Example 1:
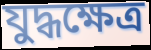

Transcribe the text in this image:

যুদ্ধক্ষেত্র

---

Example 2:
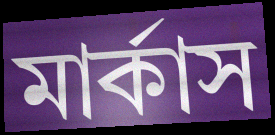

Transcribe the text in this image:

মার্কাস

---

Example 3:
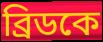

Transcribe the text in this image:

ব্রিডকে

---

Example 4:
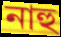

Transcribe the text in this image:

নাহু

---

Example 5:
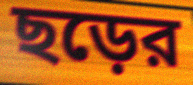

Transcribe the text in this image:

ছড়ের